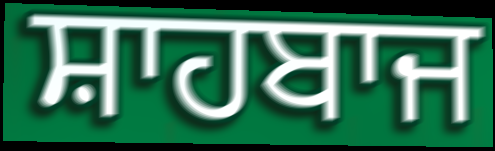
ਸ਼ਾਹਬਾਜ